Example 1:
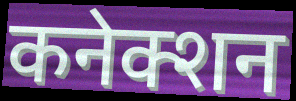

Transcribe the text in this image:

कनेक्शन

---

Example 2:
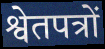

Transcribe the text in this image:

श्वेतपत्रों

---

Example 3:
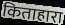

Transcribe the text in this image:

किताहारा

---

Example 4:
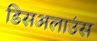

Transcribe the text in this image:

डिसअलाउंस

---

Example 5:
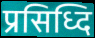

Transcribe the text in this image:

प्रसिध्दि